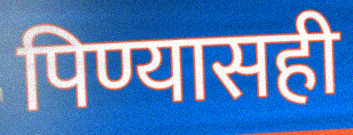
पिण्यासही